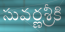
సువర్ణశ్రీకి